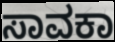
ಸಾವಕಾ